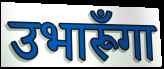
उभारूँगा